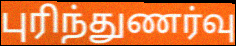
புரிந்துணர்வு